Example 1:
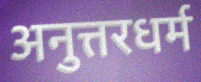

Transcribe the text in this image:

अनुत्तरधर्म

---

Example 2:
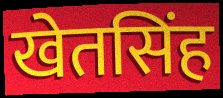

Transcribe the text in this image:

खेतसिंह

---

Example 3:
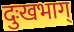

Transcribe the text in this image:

दुःखभाग्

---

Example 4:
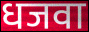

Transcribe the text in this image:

धजवा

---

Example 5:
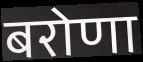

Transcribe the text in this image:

बरोणा